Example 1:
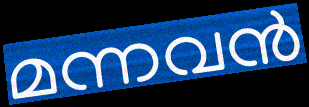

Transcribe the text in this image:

മന്നവൻ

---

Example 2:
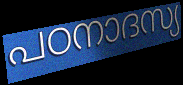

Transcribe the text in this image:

പഠനാദസ്യ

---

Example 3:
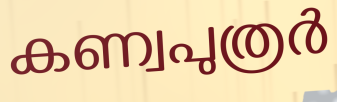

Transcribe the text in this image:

കണ്വപുത്രർ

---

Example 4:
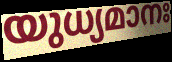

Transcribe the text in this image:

യുധ്യമാനഃ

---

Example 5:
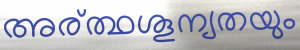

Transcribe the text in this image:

അര്ത്ഥശൂന്യതയും